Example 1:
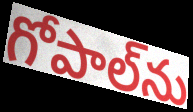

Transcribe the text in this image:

గోపాల్‌ను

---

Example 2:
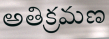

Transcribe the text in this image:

అతిక్రమణ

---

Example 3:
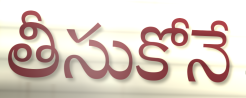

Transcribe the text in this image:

తీసుకోనే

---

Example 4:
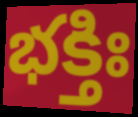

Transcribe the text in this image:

భక్తిః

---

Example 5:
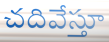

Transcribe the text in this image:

చదివేస్తూ